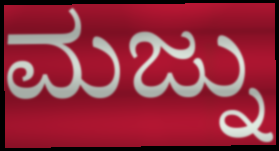
ಮಜ್ನು